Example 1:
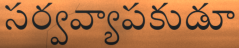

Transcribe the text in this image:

సర్వవ్యాపకుడూ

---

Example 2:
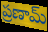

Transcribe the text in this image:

ప్రణామ్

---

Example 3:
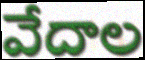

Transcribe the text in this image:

వేదాల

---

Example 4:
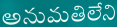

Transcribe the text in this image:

అనుమతిలేని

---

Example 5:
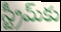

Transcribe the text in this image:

స్ట్రీమ్‌కు